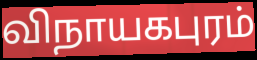
விநாயகபுரம்